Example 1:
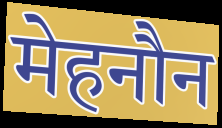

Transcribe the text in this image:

मेहनौन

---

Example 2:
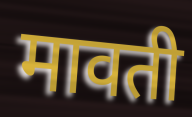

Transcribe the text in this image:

मावती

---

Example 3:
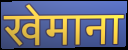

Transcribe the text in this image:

खेमाना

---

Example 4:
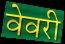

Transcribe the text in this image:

वेवरी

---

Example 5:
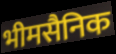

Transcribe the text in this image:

भीमसैनिक